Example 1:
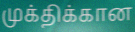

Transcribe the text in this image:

முக்திக்கான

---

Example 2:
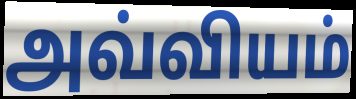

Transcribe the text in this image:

அவ்வியம்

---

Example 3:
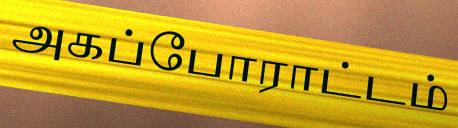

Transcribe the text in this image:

அகப்போராட்டம்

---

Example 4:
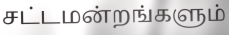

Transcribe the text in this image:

சட்டமன்றங்களும்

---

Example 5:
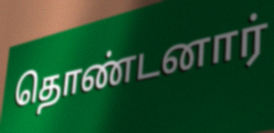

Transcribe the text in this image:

தொண்டனார்